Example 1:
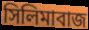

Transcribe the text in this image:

সিলিমাবাজ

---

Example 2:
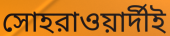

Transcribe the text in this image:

সোহরাওয়ার্দীই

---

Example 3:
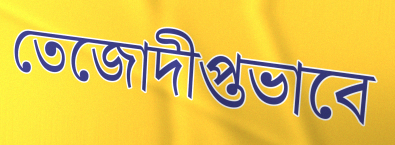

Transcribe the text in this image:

তেজোদীপ্তভাবে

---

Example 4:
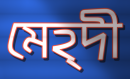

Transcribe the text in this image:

মেহ্দী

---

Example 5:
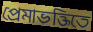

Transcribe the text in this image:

প্রেমাভক্তিতে